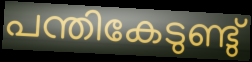
പന്തികേടുണ്ടു്